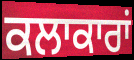
ਕਲਾਕਾਰਾਂ